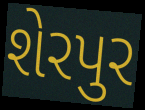
શેરપુર